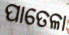
ପାତେଳା